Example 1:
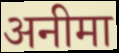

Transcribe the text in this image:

अनीमा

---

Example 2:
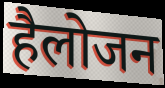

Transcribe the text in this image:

हैलोजन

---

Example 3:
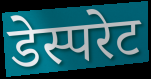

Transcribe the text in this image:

डेस्परेट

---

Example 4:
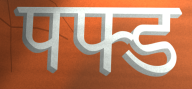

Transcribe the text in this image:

पफ्ड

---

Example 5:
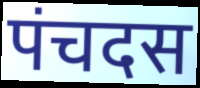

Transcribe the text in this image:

पंचदस